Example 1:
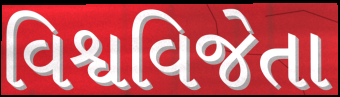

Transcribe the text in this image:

વિશ્વવિજેતા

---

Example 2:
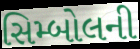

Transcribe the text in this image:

સિમ્બોલની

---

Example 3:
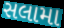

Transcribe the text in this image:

સલામા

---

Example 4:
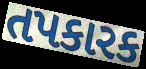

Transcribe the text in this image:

તપકારક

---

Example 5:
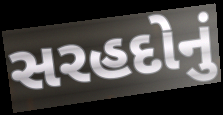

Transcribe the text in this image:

સરહદોનું